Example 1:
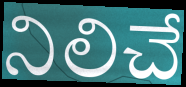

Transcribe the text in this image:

నిలిచే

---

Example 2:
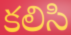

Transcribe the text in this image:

కలిసి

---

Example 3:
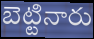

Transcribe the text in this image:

బెట్టినారు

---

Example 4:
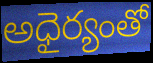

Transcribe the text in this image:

అధైర్యంతో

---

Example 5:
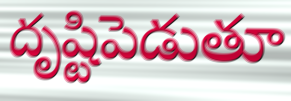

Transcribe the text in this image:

దృష్టిపెడుతూ